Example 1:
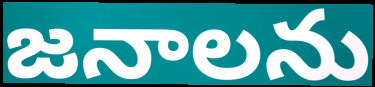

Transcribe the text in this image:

జనాలను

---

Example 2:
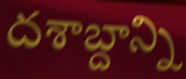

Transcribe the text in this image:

దశాబ్దాన్ని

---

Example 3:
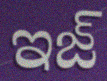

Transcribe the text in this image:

ఇజ్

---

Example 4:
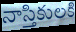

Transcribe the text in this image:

నాస్తికులకి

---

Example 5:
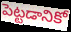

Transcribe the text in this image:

పెట్టడానికో